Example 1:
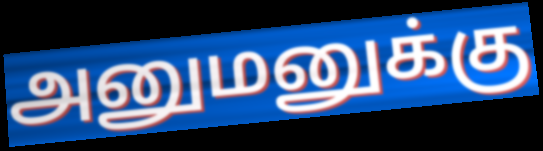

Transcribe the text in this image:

அனுமனுக்கு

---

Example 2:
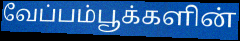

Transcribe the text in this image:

வேப்பம்பூக்களின்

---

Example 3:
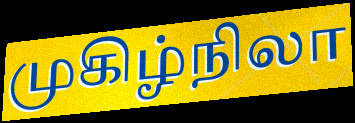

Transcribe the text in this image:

முகிழ்நிலா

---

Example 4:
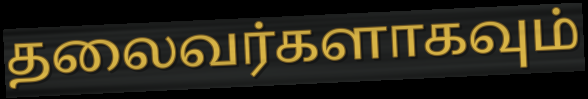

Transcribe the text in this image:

தலைவர்களாகவும்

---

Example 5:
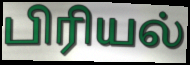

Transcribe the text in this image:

பிரியல்